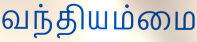
வந்தியம்மை